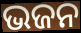
ଭଜନ